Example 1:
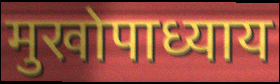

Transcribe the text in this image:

मुखोपाध्याय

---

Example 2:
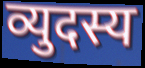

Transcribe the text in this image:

व्युदस्य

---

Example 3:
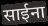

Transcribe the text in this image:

साईना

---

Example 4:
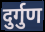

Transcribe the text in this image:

दुर्गुण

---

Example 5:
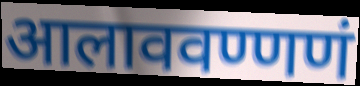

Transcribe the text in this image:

आलाववण्णणं